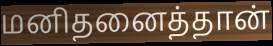
மனிதனைத்தான்